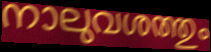
നാലുവശത്തും